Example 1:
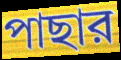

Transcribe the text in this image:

পাছার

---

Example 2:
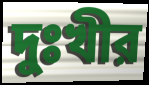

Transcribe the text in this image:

দুঃখীর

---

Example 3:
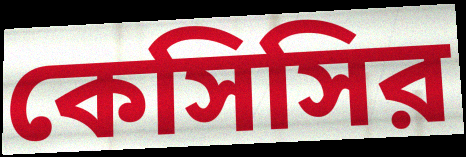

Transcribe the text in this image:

কেসিসির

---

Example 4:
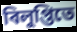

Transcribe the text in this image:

বিলুপ্তিতে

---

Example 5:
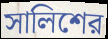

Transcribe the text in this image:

সালিশের